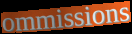
ommissions